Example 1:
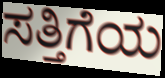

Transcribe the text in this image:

ಸತ್ತಿಗೆಯ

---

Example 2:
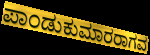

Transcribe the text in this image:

ಪಾಂಡುಕುಮಾರರಾಗವ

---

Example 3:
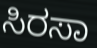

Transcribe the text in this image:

ಸಿರಸಾ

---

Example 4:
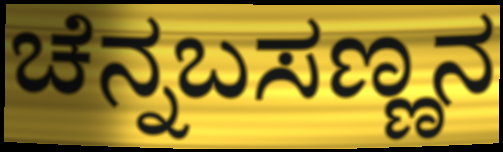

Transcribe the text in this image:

ಚೆನ್ನಬಸಣ್ಣನ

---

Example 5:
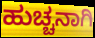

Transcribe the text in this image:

ಹುಚ್ಚನಾಗಿ